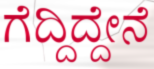
ಗೆದ್ದಿದ್ದೇನೆ